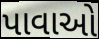
પાવાઓ